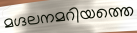
മഗ്ദലനമറിയത്തെ